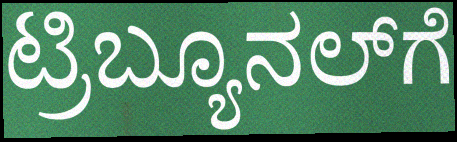
ಟ್ರಿಬ್ಯೂನಲ್‌ಗೆ